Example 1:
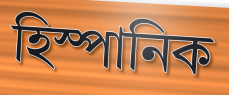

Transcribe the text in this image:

হিস্পানিক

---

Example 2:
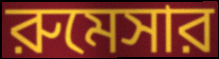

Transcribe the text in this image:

রুমেসার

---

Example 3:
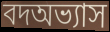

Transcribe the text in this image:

বদঅভ্যাস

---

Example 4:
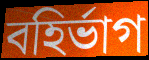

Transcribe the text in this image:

বহির্ভাগ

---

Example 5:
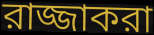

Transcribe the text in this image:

রাজ্জাকরা